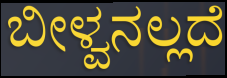
ಬೀಳ್ವನಲ್ಲದೆ